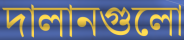
দালানগুলো